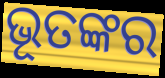
ଭୂତଙ୍କର